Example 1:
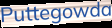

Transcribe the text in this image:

Puttegowda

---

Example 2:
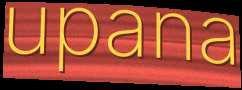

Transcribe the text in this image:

upana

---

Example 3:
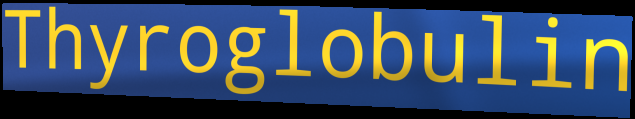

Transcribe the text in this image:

Thyroglobulin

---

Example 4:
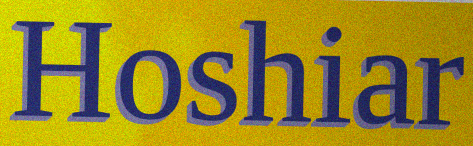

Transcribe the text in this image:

Hoshiar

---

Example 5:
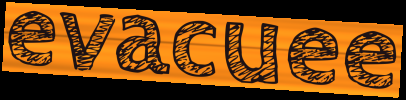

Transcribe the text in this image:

evacuee